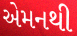
એમનથી